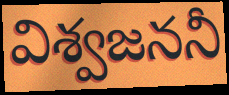
విశ్వజననీ